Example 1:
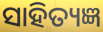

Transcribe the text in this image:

ସାହିତ୍ୟଜ୍ଞ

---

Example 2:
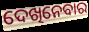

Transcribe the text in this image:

ଦେଖିନେବାର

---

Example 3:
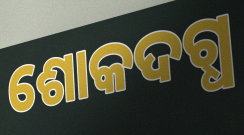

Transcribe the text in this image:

ଶୋକଦଗ୍ଧ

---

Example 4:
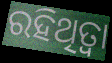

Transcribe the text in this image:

ରହିଥିତ୍ବା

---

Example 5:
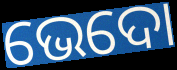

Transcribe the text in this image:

ଭେଦୋ